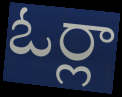
ఓర్లా